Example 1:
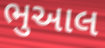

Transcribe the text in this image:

ભુઆલ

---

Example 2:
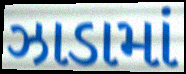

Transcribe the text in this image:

ઝાડામાં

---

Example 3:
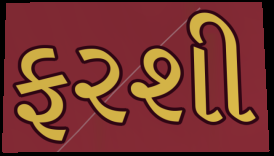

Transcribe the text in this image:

ફરશી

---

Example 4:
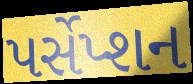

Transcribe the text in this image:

પર્સેપ્શન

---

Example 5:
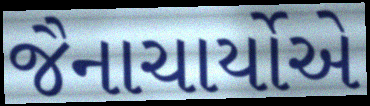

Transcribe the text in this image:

જૈનાચાર્યોએ